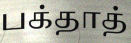
பக்தாத்